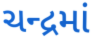
ચન્દ્રમાં